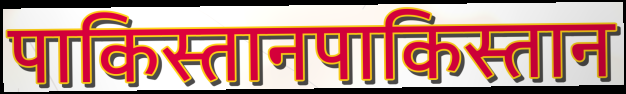
पाकिस्तानपाकिस्तान